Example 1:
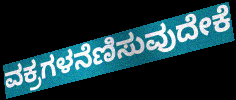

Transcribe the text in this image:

ವಕ್ರಗಳನೆಣಿಸುವುದೇಕೆ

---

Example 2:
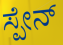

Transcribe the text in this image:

ಸ್ಪೇನ್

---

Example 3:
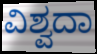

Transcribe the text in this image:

ವಿಶ್ವದಾ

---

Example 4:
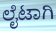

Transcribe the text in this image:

ಲೈಟಾಗಿ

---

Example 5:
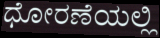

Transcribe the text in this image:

ಧೋರಣೆಯಲ್ಲಿ